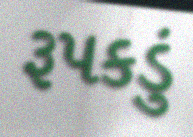
રૂપકડું